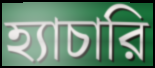
হ্যাচারি